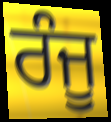
ਰੰਜੂ